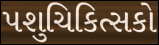
પશુચિકિત્સકો